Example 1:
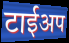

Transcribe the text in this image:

टाईअप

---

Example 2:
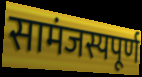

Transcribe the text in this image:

सामंजस्यपूर्ण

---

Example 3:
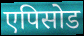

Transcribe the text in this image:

एपिसोड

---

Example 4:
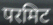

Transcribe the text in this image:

परमिट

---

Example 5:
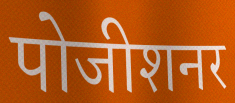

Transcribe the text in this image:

पोजीशनर